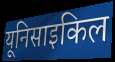
यूनिसाइकिल